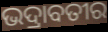
ଭଦ୍ରାବତୀର